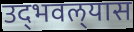
उद्भवल्यास